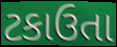
ટકાઉતા